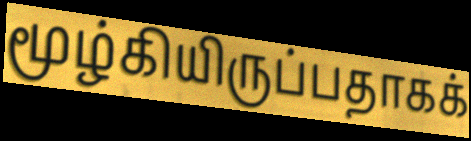
மூழ்கியிருப்பதாகக்